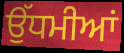
ਉੱਧਮੀਆਂ